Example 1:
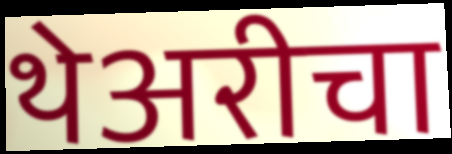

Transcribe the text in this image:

थेअरीचा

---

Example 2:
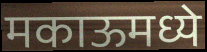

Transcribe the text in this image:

मकाऊमध्ये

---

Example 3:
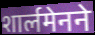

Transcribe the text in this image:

शार्लमेनने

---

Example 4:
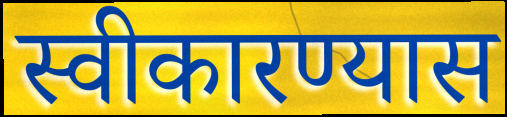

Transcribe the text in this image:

स्वीकारण्यास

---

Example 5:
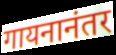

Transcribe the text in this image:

गायनानंतर